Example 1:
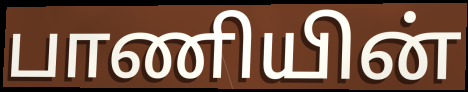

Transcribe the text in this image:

பாணியின்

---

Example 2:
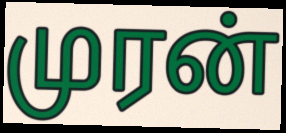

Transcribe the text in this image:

முரன்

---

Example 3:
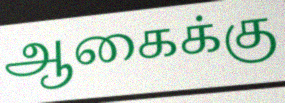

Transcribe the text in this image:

ஆகைக்கு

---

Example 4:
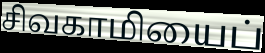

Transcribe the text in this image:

சிவகாமியைப்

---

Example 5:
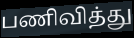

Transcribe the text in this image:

பணிவித்து